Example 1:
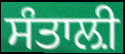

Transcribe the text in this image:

ਸੰਤਾਲ਼ੀ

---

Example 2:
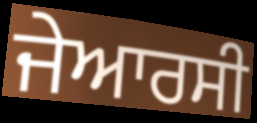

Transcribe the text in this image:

ਜੇਆਰਸੀ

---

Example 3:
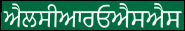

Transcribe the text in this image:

ਐਲਸੀਆਰਓਐਸਐਸ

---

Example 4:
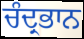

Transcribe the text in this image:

ਚੰਦ੍ਰਭਾਨ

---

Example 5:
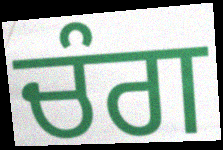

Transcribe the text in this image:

ਚੰਗ